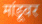
मांडूवर